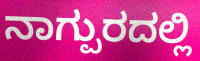
ನಾಗ್ಪುರದಲ್ಲಿ